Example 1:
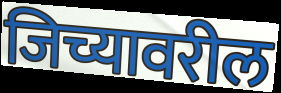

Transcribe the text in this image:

जिच्यावरील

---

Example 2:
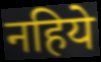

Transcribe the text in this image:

नहिये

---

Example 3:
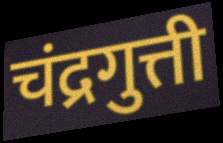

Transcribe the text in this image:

चंद्रगुत्ती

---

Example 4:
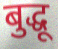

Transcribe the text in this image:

बुद्धू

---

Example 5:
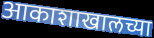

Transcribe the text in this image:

आकाशाखालच्या